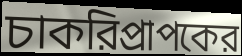
চাকরিপ্রাপকের